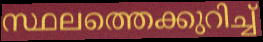
സ്ഥലത്തെക്കുറിച്ച്